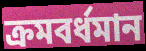
ক্ৰমবৰ্ধমান